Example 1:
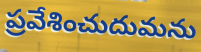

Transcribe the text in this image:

ప్రవేశించుదుమను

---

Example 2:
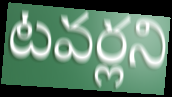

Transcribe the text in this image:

టవర్లని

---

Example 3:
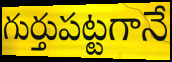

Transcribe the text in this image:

గుర్తుపట్టగానే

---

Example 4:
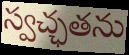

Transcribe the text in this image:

స్వచ్ఛతను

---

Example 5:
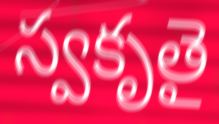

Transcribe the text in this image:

స్వకృతై